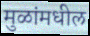
मुळांमधील